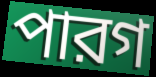
পারগ